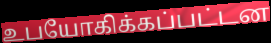
உபயோகிக்கப்பட்டன